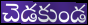
చెడకుండ